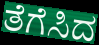
ತೆಗೆಸಿದ